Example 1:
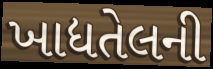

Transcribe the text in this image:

ખાદ્યતેલની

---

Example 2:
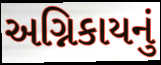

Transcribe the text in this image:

અગ્નિકાયનું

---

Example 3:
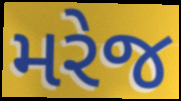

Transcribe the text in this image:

મરેજ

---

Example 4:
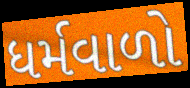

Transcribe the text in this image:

ધર્મવાળો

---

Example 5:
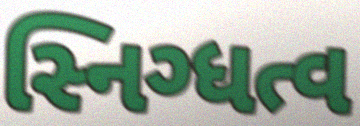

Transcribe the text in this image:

સ્નિગ્ધત્વ